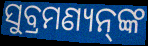
ସୁବ୍ରମଣ୍ୟନ୍‌ଙ୍କ